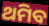
ଥମିବ